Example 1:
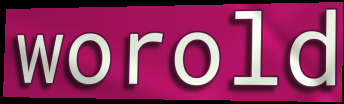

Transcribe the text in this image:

worold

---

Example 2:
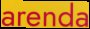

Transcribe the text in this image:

arenda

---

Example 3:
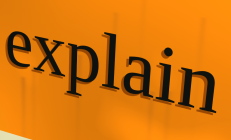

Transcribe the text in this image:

explain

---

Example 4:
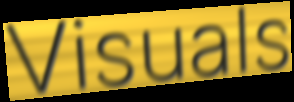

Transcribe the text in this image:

Visuals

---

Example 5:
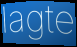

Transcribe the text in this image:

lagte